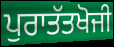
ਪੁਰਾਤੱਤਖੋਜੀ